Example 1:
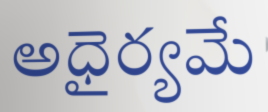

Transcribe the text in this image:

అధైర్యమే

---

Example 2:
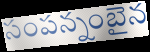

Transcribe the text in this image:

సంపన్నంబైన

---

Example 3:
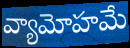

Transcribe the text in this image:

వ్యామోహమే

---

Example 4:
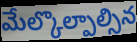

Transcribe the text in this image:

మేల్కొల్పాల్సిన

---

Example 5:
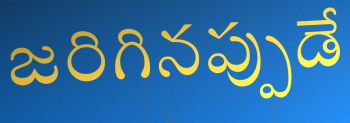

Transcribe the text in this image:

జరిగినప్పుడే